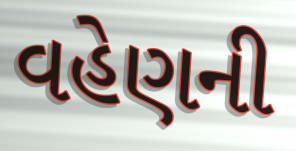
વહેણની